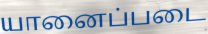
யானைப்படை